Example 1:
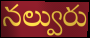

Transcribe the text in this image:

నల్వురు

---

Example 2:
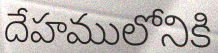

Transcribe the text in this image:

దేహములోనికి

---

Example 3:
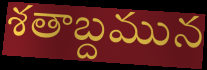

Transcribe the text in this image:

శతాబ్దమున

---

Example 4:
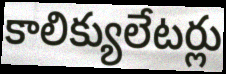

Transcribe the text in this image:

కాలిక్యులేటర్లు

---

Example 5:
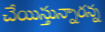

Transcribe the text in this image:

చేయిస్తున్నారన్న